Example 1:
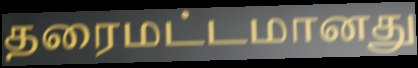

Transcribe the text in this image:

தரைமட்டமானது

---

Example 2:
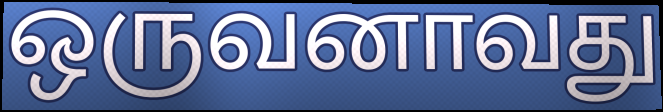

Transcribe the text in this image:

ஒருவனாவது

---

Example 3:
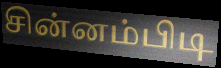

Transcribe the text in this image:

சின்னம்பிடி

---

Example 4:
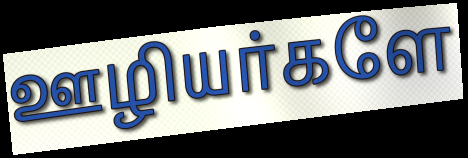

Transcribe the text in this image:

ஊழியர்களே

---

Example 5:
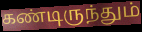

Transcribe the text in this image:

கண்டிருந்தும்